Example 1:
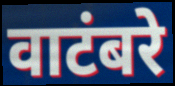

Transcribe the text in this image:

वाटंबरे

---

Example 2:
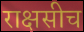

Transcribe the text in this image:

राक्षसीच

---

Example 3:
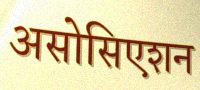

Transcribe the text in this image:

असोसिएशन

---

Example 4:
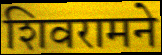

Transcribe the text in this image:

शिवरामने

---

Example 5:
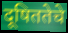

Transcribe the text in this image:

दूषिततेचे